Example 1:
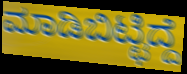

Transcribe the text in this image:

ಮಾಡಿಬಿಟ್ಟಿದ್ದೆ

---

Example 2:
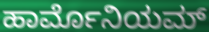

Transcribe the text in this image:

ಹಾರ್ಮೊನಿಯಮ್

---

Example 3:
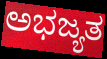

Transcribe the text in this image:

ಅಭಜ್ಯತ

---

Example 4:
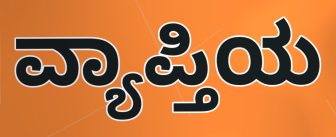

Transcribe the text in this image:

ವ್ಯಾಪ್ತಿಯ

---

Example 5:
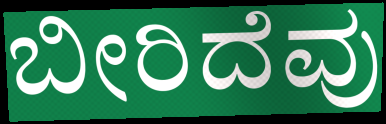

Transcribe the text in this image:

ಬೀರಿದೆವು